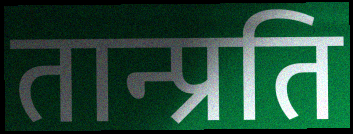
तान्प्रति